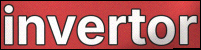
invertor